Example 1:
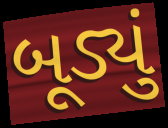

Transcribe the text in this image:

બૂડ્યું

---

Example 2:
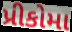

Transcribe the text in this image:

પ્રીકોમા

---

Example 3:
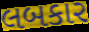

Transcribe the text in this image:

લબકાર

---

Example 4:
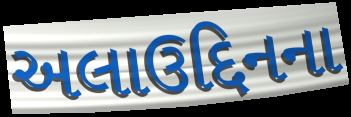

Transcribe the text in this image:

અલાઉદ્દિનના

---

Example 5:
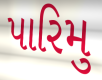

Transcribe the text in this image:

પારિમુ